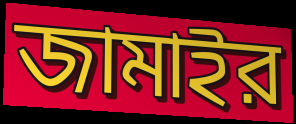
জামাইর